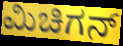
ಮಿಚಿಗನ್